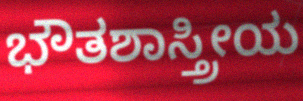
ಭೌತಶಾಸ್ತ್ರೀಯ